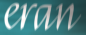
eran